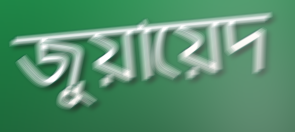
জুয়ায়েদ